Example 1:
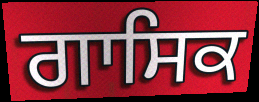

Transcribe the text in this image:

ਗਾਸਿਕ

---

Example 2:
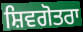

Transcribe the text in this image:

ਸ਼ਿਵਗੋਤਰਾ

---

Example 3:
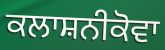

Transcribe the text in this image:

ਕਲਾਸ਼ਨੀਕੋਵਾ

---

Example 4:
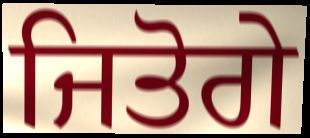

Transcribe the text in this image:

ਜਿਤੋਗੇ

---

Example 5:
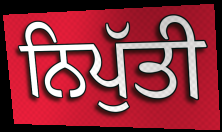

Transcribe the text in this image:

ਨਿਪੁੱਤੀ